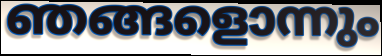
ഞങ്ങളൊന്നും